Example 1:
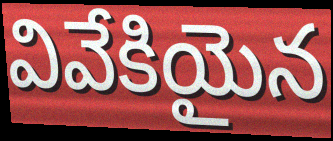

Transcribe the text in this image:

వివేకియైన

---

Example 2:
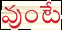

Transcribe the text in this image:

వుంటే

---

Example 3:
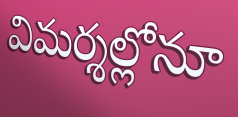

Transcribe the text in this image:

విమర్శల్లోనూ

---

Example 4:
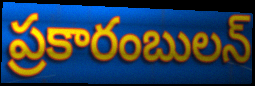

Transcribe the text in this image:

ప్రకారంబులన్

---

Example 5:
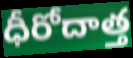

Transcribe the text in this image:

ధీరోదాత్త